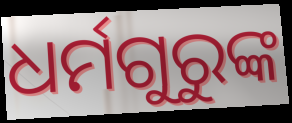
ଧର୍ମଗୁରୁଙ୍କ